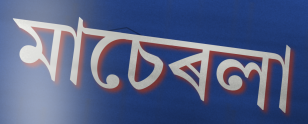
মাচেৰলা